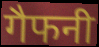
गैफनी